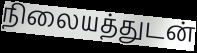
நிலையத்துடன்